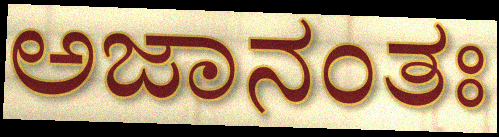
ಅಜಾನಂತಃ